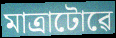
মাত্ৰাটোৱে